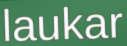
laukar